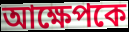
আক্ষেপকে